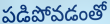
పడిపోవడంతో